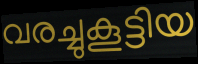
വരച്ചുകൂട്ടിയ